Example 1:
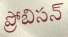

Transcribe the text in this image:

ప్రోబిసన్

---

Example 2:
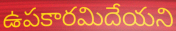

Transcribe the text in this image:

ఉపకారమిదేయని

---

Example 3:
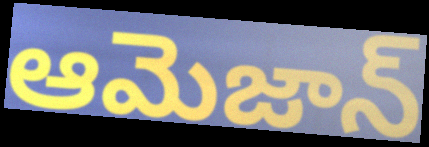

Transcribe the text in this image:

ఆమెజాన్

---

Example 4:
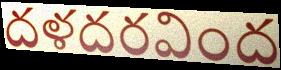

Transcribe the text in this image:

దళదరవింద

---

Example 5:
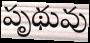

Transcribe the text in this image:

పృథువు